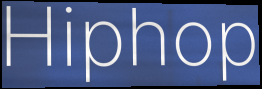
Hiphop